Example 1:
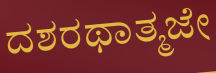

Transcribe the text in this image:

ದಶರಥಾತ್ಮಜೇ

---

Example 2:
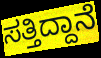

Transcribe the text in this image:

ಸತ್ತಿದ್ದಾನೆ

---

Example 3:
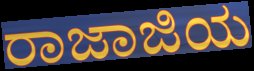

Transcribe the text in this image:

ರಾಜಾಜಿಯ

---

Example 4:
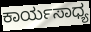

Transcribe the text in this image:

ಕಾರ್ಯಸಾಧ್ಯ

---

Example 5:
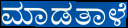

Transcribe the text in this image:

ಮಾಡತಾಳೆ